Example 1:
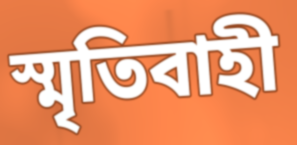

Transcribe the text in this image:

স্মৃতিবাহী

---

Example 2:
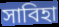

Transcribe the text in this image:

সাবিহা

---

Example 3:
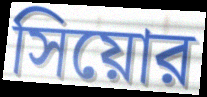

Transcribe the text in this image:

সিয়োর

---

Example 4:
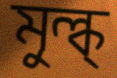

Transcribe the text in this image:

মুল্ক্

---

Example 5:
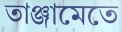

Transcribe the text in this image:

তাঞ্জামেতে